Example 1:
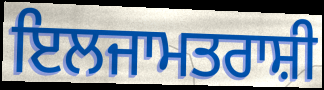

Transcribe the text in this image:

ਇਲਜਾਮਤਰਾਸ਼ੀ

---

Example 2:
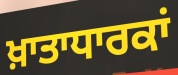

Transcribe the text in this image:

ਖ਼ਾਤਾਧਾਰਕਾਂ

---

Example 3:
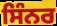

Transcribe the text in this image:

ਸਿੰਨਰ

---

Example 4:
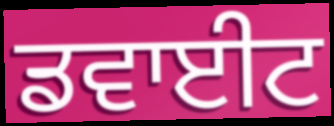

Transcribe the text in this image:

ਡਵਾਈਟ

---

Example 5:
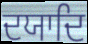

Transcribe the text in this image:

ਦਯਾਦਿ